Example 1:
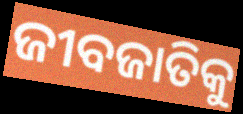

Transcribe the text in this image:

ଜୀବଜାତିକୁ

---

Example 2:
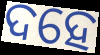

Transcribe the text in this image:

ଦହେ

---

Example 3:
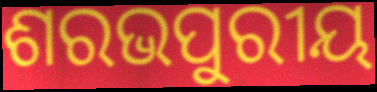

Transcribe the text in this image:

ଶରଭପୁରୀୟ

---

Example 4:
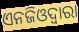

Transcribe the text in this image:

ଏନଜିଓଦ୍ୱାରା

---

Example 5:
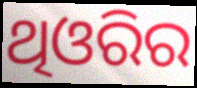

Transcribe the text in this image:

ଥିଓରିର